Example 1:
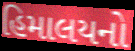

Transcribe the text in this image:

હિમાલયનો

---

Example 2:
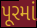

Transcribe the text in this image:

પૂરમાં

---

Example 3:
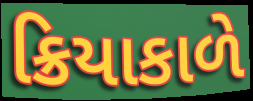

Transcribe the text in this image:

ક્રિયાકાળે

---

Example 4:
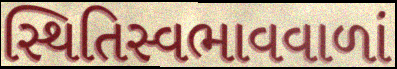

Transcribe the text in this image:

સ્થિતિસ્વભાવવાળાં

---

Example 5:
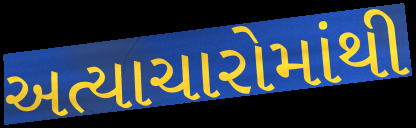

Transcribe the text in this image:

અત્યાચારોમાંથી